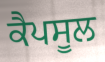
ਕੈਪਸੂਲ